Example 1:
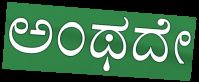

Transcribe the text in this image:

ಅಂಥದೇ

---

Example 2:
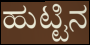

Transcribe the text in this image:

ಹುಟ್ಟಿನ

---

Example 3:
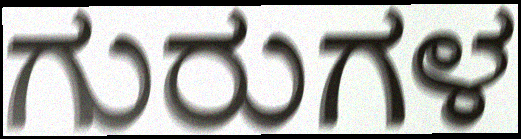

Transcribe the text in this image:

ಗುರುಗಳ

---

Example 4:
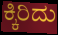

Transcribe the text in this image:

ಕ್ಕಿರಿದು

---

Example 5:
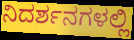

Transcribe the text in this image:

ನಿದರ್ಶನಗಳಲ್ಲಿ